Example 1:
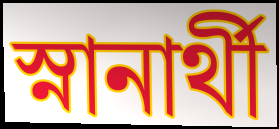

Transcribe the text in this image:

স্নানার্থী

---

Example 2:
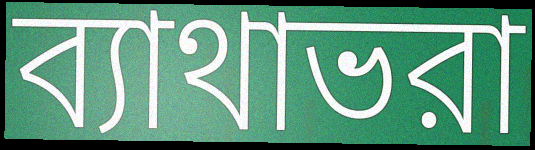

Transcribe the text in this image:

ব্যাথাভরা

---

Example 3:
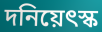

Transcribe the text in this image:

দনিয়েৎস্ক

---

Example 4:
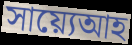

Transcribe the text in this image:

সায়্যেআহ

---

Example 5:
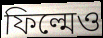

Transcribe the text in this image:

ফিল্মেও